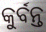
କୁର୍ବନ୍ତ